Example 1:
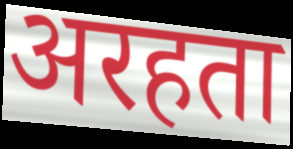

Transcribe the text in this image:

अरहता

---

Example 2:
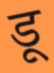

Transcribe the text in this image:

डू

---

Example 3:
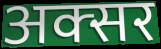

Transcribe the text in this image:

अक्‍सर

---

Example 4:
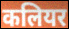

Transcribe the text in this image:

कलियर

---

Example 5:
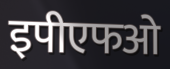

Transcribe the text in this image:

इपीएफओ